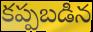
కప్పబడిన